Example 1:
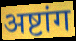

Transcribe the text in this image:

अष्टांग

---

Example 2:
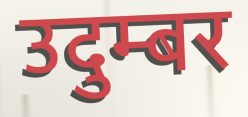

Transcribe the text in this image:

उदुम्बर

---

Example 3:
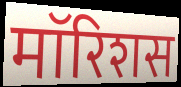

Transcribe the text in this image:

मॉरिशस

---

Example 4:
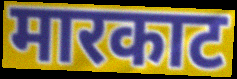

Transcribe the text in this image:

मारकाट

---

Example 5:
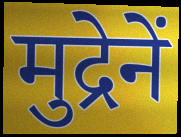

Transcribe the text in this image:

मुद्रेनें